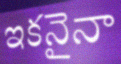
ఇకనైనా